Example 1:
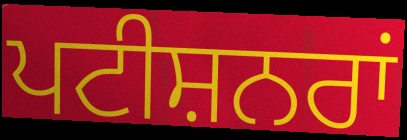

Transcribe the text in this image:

ਪਟੀਸ਼ਨਰਾਂ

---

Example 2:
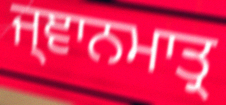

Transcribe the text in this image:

ਜ੍ਞਾਨਮਾਤ੍ਰ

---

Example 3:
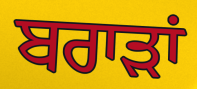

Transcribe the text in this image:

ਬਰਾੜਾਂ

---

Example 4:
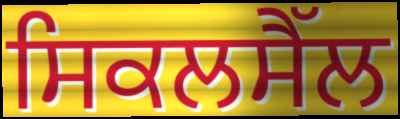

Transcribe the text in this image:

ਸਿਕਲਸੈੱਲ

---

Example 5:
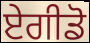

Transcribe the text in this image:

ਏਗੀਡੋ